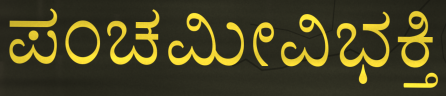
ಪಂಚಮೀವಿಭಕ್ತಿ